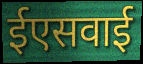
ईएसवाई